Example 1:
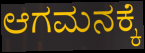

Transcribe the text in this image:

ಆಗಮನಕ್ಕೆ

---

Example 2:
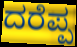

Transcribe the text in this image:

ದರೆಪ್ಪ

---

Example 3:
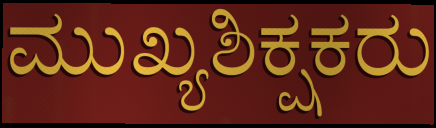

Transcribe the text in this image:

ಮುಖ್ಯಶಿಕ್ಷಕರು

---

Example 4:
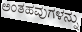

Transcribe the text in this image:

ಅಂತಹವುಗಳನ್ನು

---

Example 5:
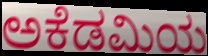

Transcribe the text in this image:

ಅಕೆಡಮಿಯ